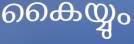
കൈയ്യും